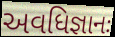
અવધિજ્ઞાનઃ